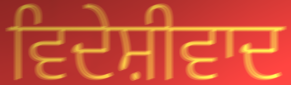
ਵਿਦੇਸ਼ੀਵਾਦ